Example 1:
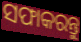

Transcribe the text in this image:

ସଫାକରନ୍ତୁ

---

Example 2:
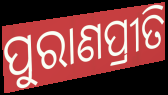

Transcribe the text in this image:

ପୁରାଣପ୍ରୀତି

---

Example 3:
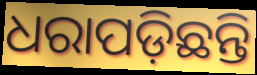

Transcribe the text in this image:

ଧରାପଡ଼ିଛନ୍ତି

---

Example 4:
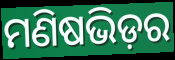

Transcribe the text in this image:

ମଣିଷଭିଡ଼ର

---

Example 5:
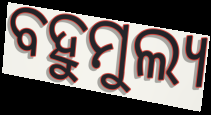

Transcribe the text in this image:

ବହୁମୁଲ୍ୟ